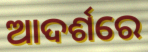
ଆଦର୍ଶରେ